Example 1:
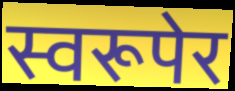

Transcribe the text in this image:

स्वरूपेर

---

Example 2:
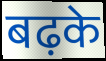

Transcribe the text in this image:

बढ़के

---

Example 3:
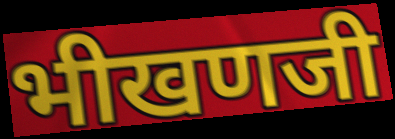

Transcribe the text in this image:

भीखणजी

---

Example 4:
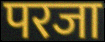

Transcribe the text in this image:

परजा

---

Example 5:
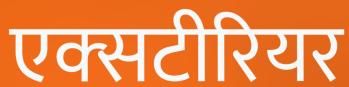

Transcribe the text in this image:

एक्‍सटीरियर